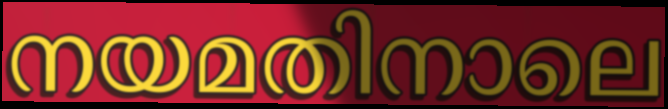
നയമതിനാലെ